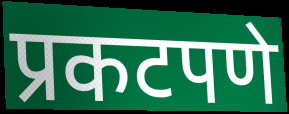
प्रकटपणे